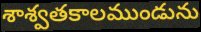
శాశ్వతకాలముండును